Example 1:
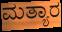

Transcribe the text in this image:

ಮತ್ಯಾರ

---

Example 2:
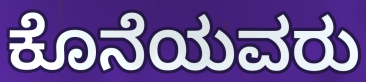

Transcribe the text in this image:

ಕೊನೆಯವರು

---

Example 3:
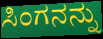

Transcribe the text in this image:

ಸಿಂಗನನ್ನು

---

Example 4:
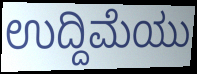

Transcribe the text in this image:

ಉದ್ದಿಮೆಯು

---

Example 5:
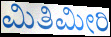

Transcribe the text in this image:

ಮಿತಿಮೀರಿ